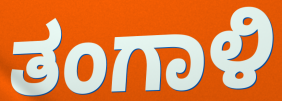
ತಂಗಾಳಿ